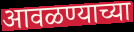
आवळण्याच्या